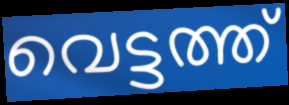
വെട്ടത്ത്